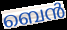
ബെൻ